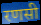
रणसी